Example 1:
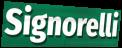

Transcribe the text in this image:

Signorelli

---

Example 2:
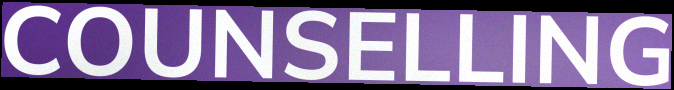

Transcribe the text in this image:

COUNSELLING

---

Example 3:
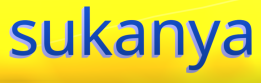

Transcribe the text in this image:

sukanya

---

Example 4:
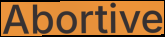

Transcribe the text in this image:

Abortive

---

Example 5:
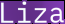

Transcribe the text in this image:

Liza